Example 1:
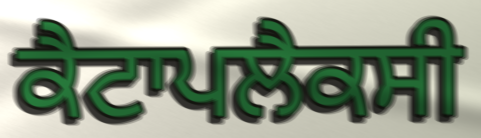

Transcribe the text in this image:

ਕੈਟਾਪਲੈਕਸੀ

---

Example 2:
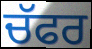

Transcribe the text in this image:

ਚੱਫਰ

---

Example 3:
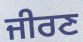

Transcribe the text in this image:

ਜੀਰਣ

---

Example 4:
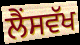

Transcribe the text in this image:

ਲੈਂਸਵੱਖ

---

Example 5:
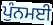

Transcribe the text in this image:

ਪੁੰਨਮਈ